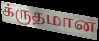
க்ருதமான